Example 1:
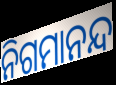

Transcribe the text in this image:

ନିଗମାନନ୍ଦ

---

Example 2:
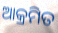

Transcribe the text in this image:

ଆକ୍ରମିତ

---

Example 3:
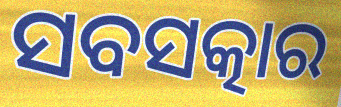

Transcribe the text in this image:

ସବସତ୍କାର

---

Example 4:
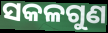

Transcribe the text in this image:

ସକଳଗୁଣ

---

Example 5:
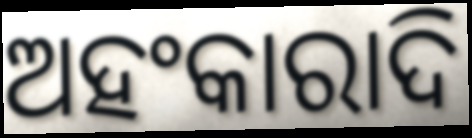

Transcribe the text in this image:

ଅହଂକାରାଦି